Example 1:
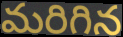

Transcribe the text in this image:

మరిగిన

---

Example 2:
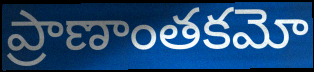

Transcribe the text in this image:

ప్రాణాంతకమో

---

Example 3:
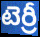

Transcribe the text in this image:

టెర్రీ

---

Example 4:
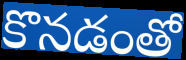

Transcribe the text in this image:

కొనడంతో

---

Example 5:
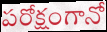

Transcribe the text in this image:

పరోక్షంగానో